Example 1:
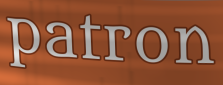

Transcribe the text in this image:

patron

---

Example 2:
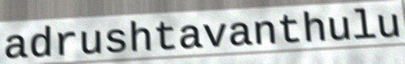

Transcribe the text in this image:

adrushtavanthulu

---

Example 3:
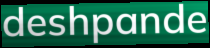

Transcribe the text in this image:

deshpande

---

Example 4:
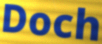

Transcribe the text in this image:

Doch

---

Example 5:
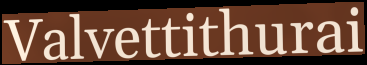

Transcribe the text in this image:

Valvettithurai